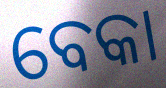
ବେକା